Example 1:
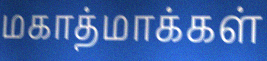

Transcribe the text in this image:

மகாத்மாக்கள்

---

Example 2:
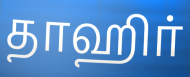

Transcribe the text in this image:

தாஹிர்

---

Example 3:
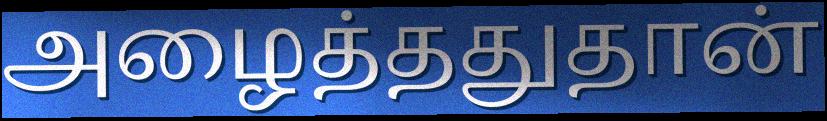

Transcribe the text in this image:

அழைத்ததுதான்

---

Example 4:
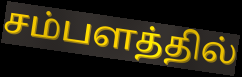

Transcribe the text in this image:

சம்பளத்தில்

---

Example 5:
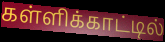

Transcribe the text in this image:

கள்ளிக்காட்டில்